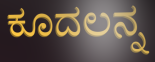
ಕೂದಲನ್ನ